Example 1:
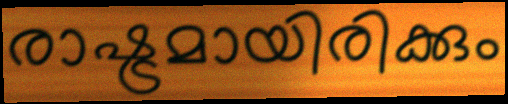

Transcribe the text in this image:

രാഷ്ട്രമായിരിക്കും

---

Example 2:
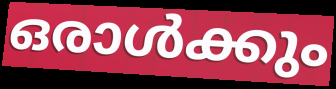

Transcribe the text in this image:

ഒരാൾക്കും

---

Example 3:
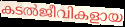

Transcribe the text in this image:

കടൽജീവികളായ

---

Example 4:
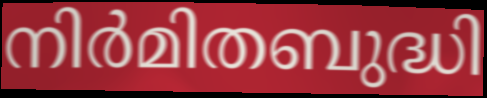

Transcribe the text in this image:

നിർമിതബുദ്ധി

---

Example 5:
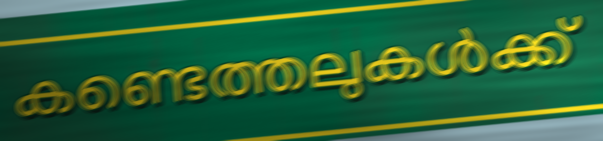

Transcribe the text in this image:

കണ്ടെത്തലുകൾക്ക്